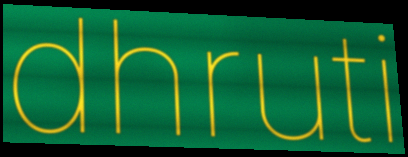
dhruti